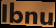
Ibnu